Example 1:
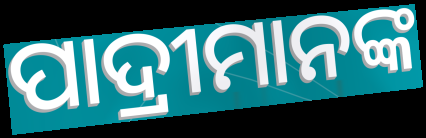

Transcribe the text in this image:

ପାଦ୍ରୀମାନଙ୍କ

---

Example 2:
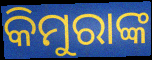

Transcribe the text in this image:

କିମୁରାଙ୍କ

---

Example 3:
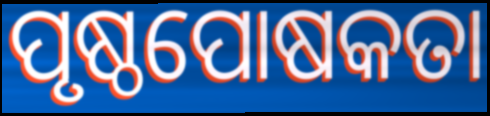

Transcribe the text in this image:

ପୃଷ୍ଠପୋଷକତା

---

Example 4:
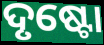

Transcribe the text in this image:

ଦୃଷ୍ଟୋ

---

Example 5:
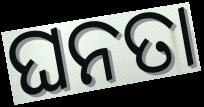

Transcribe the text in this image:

ଘନତା